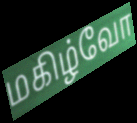
மகிழ்வோ